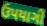
ઉપયાગી